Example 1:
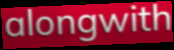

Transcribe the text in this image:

alongwith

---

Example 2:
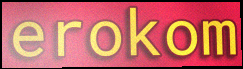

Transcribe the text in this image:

erokom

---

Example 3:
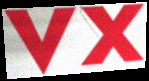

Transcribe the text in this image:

vx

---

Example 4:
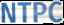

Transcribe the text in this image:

NTPC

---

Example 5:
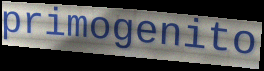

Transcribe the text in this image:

primogenito